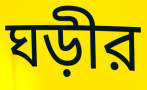
ঘড়ীর